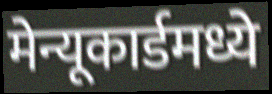
मेन्यूकार्डमध्ये